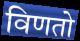
विणतो